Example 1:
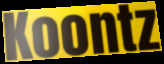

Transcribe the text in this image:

Koontz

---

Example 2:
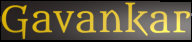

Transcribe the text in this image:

Gavankar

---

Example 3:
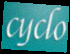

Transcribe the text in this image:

cyclo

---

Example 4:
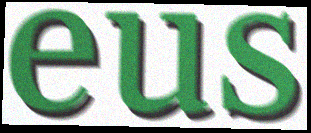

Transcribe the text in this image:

eus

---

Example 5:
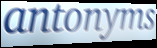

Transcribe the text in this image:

antonyms